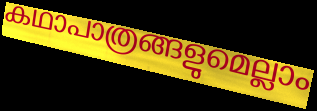
കഥാപാത്രങ്ങളുമെല്ലാം